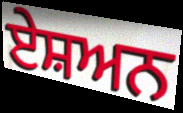
ਏਸ਼ਅਨ